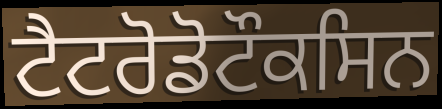
ਟੈਟਰੋਡੋਟੌਕਸਿਨ